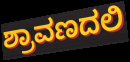
ಶ್ರಾವಣದಲಿ